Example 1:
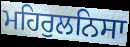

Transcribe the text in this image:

ਮਹਿਰੁਲਨਿਸਾ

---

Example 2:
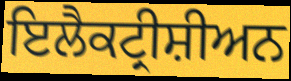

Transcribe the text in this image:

ਇਲੈਕਟ੍ਰੀਸ਼ੀਅਨ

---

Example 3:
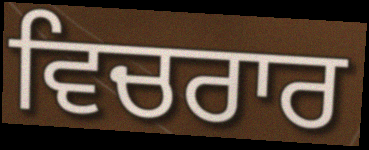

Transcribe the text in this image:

ਵਿਚਰਾਰ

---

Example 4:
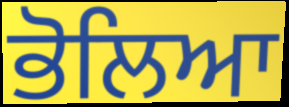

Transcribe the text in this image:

ਭੋਲਿਆ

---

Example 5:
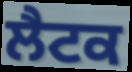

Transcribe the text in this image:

ਲੈਟਕ